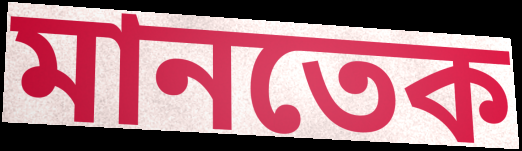
মানতেক